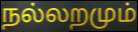
நல்லறமும்